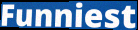
Funniest